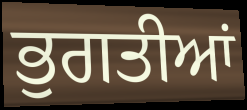
ਭੁਗਤੀਆਂ